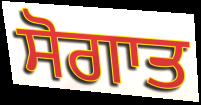
ਸੋਗਾਤ